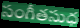
సంగీతసుధ